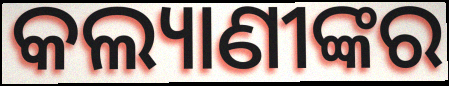
କଲ୍ୟାଣୀଙ୍କର